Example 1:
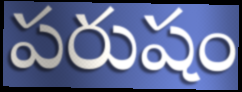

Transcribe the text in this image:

పరుషం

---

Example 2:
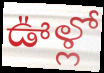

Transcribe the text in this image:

ఊళ్లో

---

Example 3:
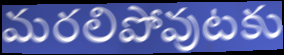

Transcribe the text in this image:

మరలిపోవుటకు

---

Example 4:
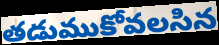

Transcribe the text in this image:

తడుముకోవలసిన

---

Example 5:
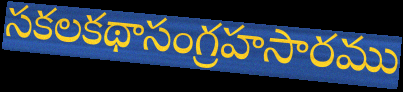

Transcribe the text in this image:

సకలకథాసంగ్రహసారము